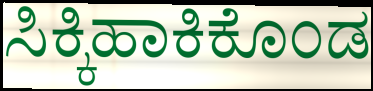
ಸಿಕ್ಕಿಹಾಕಿಕೊಂಡ